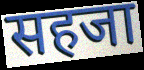
सहजा